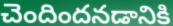
చెందిందనడానికి